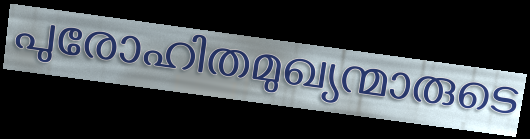
പുരോഹിതമുഖ്യന്മാരുടെ